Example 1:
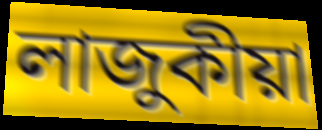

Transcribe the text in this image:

লাজুকীয়া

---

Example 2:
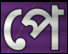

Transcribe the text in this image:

পে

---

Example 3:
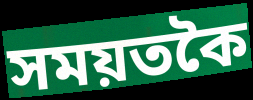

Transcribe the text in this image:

সময়তকৈ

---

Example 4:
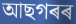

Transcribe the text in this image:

আছগৰৰ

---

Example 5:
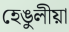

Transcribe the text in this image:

হেঙুলীয়া